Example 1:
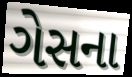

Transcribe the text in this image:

ગેસના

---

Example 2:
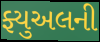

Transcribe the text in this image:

ફ્યુઅલની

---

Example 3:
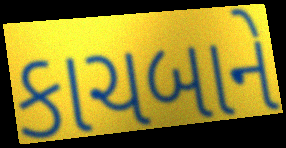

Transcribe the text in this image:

કાચબાને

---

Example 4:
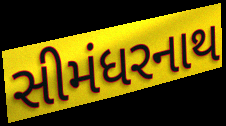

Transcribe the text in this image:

સીમંધરનાથ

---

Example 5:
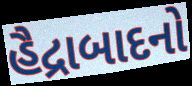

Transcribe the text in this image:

હૈદ્રાબાદનો